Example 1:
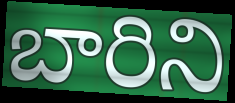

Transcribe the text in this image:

బారిని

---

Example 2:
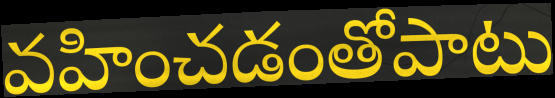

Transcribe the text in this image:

వహించడంతోపాటు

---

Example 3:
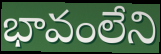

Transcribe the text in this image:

భావంలేని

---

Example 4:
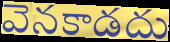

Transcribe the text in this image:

వెనకాడదు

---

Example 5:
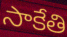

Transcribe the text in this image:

సాకేతి